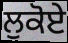
ਲੁਕੋਏ